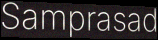
Samprasad